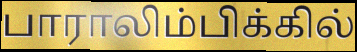
பாராலிம்பிக்கில்